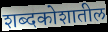
शब्दकोशातील